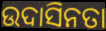
ଉଦାସିନତା